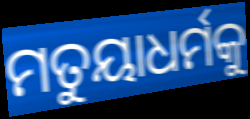
ମତୁୟାଧର୍ମକୁ